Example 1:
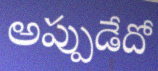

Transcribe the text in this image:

అప్పుడేదో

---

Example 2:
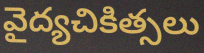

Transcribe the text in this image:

వైద్యచికిత్సలు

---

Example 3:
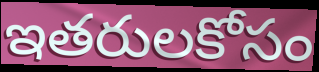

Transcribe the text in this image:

ఇతరులకోసం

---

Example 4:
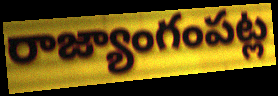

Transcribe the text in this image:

రాజ్యాంగంపట్ల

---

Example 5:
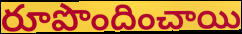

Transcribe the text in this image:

రూపొందించాయి